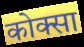
कोक्सा